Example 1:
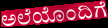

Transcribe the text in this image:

ಅಲೆಯೊಂದಿಗೆ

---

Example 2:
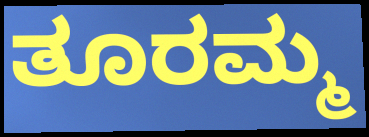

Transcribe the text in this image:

ತೂರಮ್ಮ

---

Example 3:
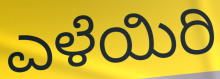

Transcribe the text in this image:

ಎಳೆಯಿರಿ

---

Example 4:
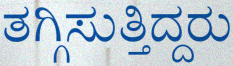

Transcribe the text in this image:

ತಗ್ಗಿಸುತ್ತಿದ್ದರು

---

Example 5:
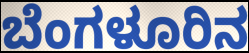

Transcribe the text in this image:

ಬೆಂಗಳೂರಿನ